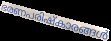
ഭരണപരിഷ്കാരങ്ങൾ